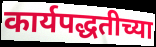
कार्यपद्धतीच्या